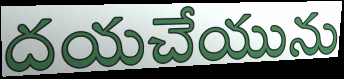
దయచేయును